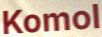
Komol